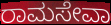
ರಾಮಸೇವಾ